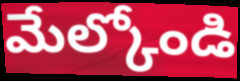
మేల్కోండి